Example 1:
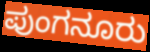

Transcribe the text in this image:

ಪುಂಗನೂರು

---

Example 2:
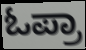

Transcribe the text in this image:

ಓಪ್ರಾ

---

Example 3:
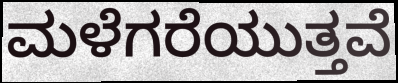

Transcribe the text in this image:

ಮಳೆಗರೆಯುತ್ತವೆ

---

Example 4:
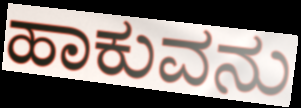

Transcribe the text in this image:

ಹಾಕುವನು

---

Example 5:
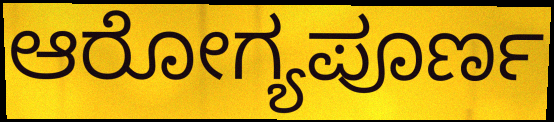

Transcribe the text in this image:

ಆರೋಗ್ಯಪೂರ್ಣ